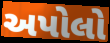
અપોલો